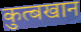
कुत्बखान